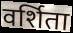
वर्शिता